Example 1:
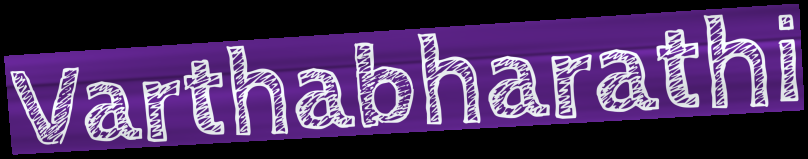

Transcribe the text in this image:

Varthabharathi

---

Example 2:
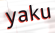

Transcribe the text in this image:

yaku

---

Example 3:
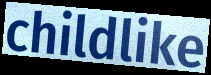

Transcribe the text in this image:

childlike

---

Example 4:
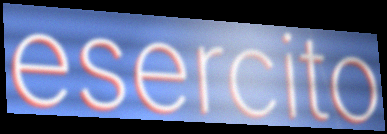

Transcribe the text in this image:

esercito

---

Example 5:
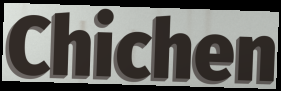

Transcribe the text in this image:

Chichen